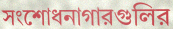
সংশোধনাগারগুলির